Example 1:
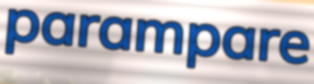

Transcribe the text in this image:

parampare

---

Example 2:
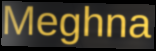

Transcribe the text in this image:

Meghna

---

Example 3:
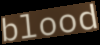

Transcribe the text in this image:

blood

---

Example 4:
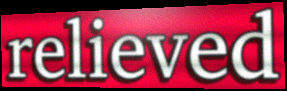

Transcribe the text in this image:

relieved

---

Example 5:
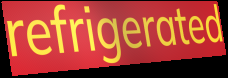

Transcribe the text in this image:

refrigerated